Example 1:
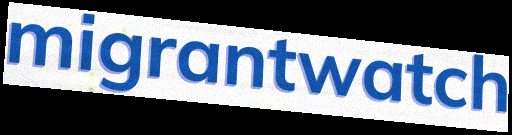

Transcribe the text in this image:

migrantwatch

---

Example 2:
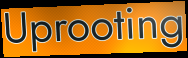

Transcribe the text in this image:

Uprooting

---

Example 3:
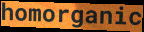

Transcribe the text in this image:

homorganic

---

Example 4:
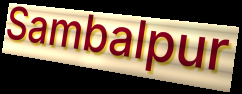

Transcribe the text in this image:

Sambalpur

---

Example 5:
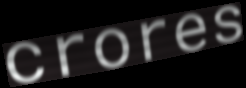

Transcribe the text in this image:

crores